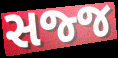
સજ્જ